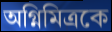
অগ্নিমিত্রকে